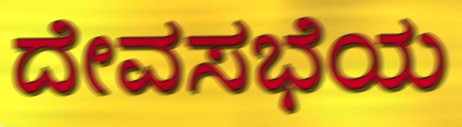
ದೇವಸಭೆಯ